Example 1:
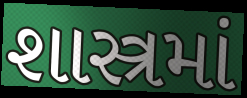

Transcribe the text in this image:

શાસ્ત્રમાં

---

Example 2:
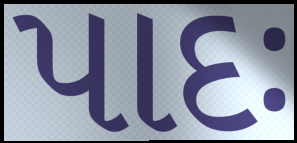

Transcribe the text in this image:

પાદઃ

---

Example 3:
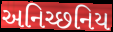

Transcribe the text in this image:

અનિચ્છનિય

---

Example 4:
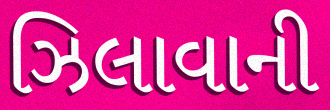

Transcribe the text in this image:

ઝિલાવાની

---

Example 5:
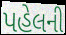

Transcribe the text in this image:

પહેલની